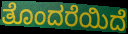
ತೊಂದರೆಯಿದೆ